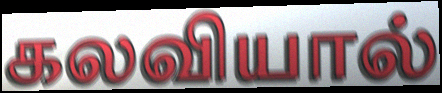
கலவியால்